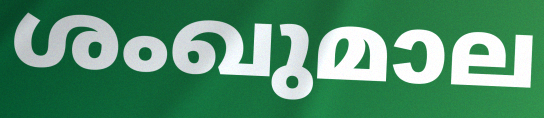
ശംഖുമാല